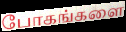
போகங்களை